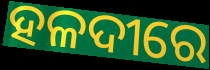
ହଳଦୀରେ